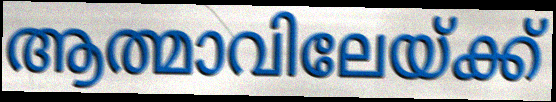
ആത്മാവിലേയ്ക്ക്